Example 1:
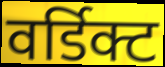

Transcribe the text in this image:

वर्डिक्ट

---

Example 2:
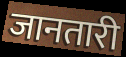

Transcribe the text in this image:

जानतारी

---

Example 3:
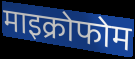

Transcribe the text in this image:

माइक्रोफोम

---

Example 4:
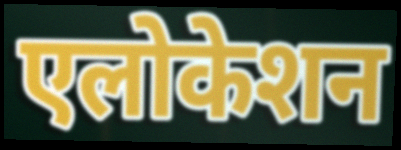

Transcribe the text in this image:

एलोकेशन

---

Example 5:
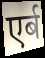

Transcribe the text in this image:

एर्ब